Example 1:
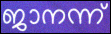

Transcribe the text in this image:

ജാനന്ന്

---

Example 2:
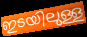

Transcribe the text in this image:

ഇടയിലുള്ള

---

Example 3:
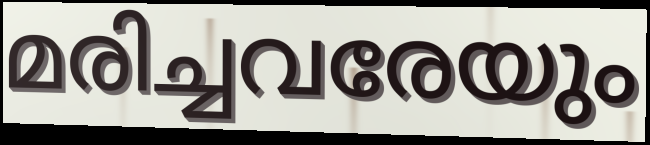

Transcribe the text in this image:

മരിച്ചവരേയും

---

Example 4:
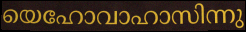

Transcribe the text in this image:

യെഹോവാഹാസിന്നു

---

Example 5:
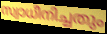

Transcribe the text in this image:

സ്വാധീനിച്ചതും